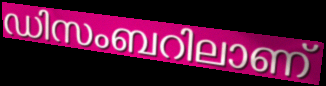
ഡിസംബറിലാണ്